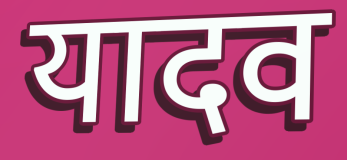
यादव